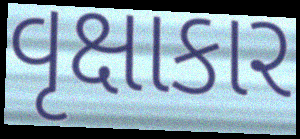
વૃક્ષાકાર